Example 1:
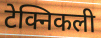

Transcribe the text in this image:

टेक्निकली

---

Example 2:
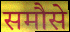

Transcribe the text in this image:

समौसे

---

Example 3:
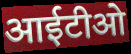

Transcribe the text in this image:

आईटीओ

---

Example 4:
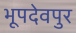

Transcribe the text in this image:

भूपदेवपुर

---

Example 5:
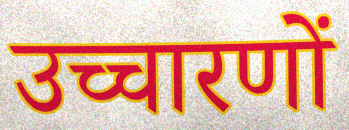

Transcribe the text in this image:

उच्चारणों